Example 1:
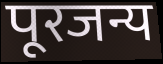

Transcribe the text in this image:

पूरजन्य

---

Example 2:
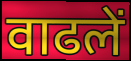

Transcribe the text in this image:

वाढलें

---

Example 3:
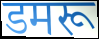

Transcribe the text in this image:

डमरू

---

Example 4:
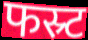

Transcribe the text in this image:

फस्र्ट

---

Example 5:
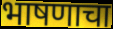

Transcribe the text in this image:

भाषणाचा